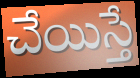
చేయిస్తే